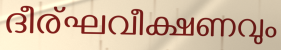
ദീര്ഘവീക്ഷണവും